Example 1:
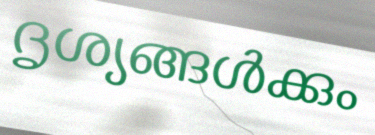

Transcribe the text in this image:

ദൃശ്യങ്ങൾക്കും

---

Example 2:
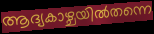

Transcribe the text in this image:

ആദ്യകാഴ്ചയിൽതന്നെ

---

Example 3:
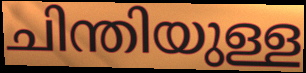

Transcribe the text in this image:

ചിന്തിയുള്ള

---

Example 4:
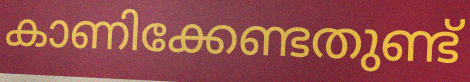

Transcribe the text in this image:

കാണിക്കേണ്ടതുണ്ട്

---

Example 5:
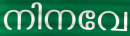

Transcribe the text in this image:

നിനവേ